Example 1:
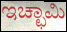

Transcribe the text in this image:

ಇಚ್ಛಾಮಿ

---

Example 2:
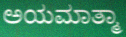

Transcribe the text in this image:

ಅಯಮಾತ್ಮಾ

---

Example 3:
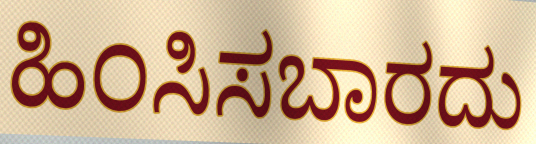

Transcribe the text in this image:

ಹಿಂಸಿಸಬಾರದು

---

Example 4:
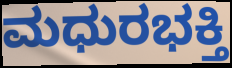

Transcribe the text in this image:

ಮಧುರಭಕ್ತಿ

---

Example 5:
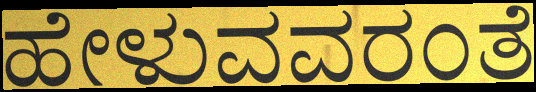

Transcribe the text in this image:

ಹೇಳುವವರಂತೆ